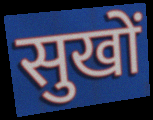
सुखों